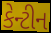
કેન્ટીન